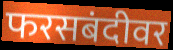
फरसबंदीवर